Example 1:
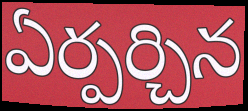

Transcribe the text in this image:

ఏర్పర్చిన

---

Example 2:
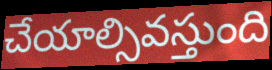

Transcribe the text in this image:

చేయాల్సివస్తుంది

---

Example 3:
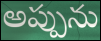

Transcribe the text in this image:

అప్పును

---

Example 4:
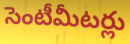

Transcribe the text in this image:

సెంటీమీటర్లు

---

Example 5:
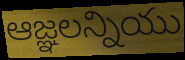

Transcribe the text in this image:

ఆజ్ఞలన్నియు